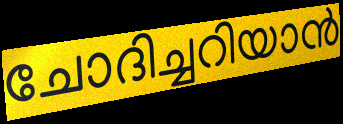
ചോദിച്ചറിയാൻ